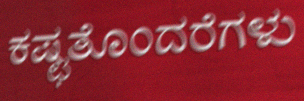
ಕಷ್ಟತೊಂದರೆಗಳು